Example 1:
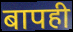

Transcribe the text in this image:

बापही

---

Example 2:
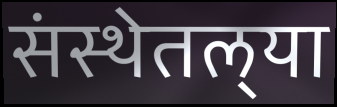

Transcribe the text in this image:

संस्थेतल्या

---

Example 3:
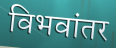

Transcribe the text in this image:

विभवांतर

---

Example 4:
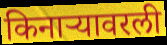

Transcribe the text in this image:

किनाऱ्यावरली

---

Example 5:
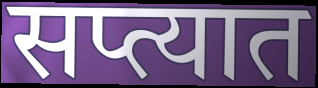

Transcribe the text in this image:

सप्त्यात